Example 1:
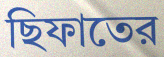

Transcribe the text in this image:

ছিফাতের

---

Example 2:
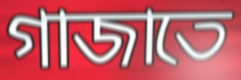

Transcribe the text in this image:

গাজাতে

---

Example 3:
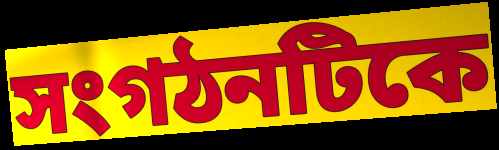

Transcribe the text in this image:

সংগঠনটিকে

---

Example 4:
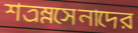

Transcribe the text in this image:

শত্রম্নসেনাদের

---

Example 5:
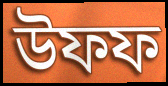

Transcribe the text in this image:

উফফ